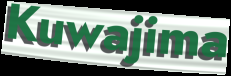
Kuwajima